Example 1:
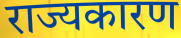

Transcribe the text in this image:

राज्यकारण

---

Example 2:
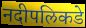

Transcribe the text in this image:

नदीपलिकडे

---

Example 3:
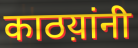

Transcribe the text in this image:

काठय़ांनी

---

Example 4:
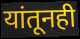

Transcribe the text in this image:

यांतूनही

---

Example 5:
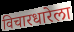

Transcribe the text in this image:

विचारधारेला